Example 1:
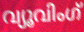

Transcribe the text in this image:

വ്യൂവിംഗ്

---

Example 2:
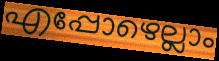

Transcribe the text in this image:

എപ്പോഴെല്ലാം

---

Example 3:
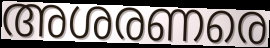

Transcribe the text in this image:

അശരണരെ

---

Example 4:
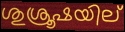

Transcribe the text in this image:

ശുശ്രൂഷയില്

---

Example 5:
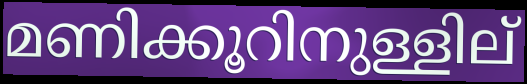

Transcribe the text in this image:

മണിക്കൂറിനുള്ളില്